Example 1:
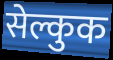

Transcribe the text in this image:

सेल्कुक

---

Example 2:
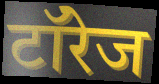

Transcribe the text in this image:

टॉरेज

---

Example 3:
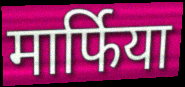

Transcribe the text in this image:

मार्फिया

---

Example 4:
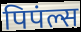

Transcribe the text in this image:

पिपंल्स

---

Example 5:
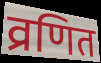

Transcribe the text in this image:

व्रणित